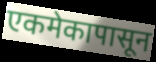
एकमेकापासून